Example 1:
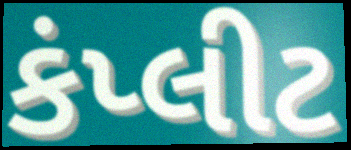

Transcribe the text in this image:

કંપ્લીટ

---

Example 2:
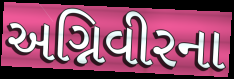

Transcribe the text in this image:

અગ્નિવીરના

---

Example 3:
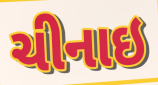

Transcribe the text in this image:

ચીનાઇ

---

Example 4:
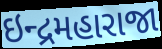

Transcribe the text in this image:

ઇન્દ્રમહારાજા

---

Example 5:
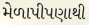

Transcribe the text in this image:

મેળાપીપણાથી